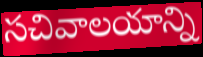
సచివాలయాన్ని